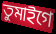
তুমাইগে